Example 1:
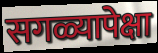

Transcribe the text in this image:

सगळ्यापेक्षा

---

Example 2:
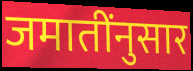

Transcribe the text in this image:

जमातींनुसार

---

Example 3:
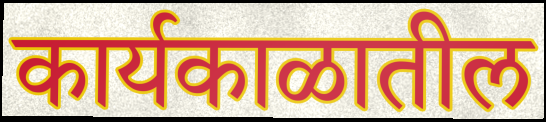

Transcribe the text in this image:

कार्यकाळातील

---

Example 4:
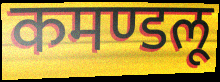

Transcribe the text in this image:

कमण्डलू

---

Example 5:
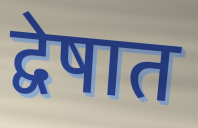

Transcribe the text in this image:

द्वेषात